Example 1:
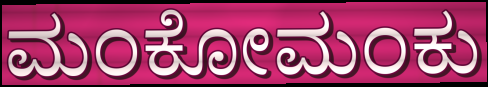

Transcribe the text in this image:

ಮಂಕೋಮಂಕು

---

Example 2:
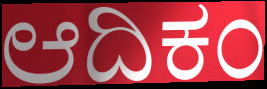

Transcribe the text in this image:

ಆದಿಕಂ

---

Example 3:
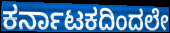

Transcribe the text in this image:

ಕರ್ನಾಟಕದಿಂದಲೇ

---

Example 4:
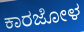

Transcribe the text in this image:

ಕಾರಜೋಳ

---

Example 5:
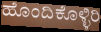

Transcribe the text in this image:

ಹೊಂದಿಕೊಳ್ಳಿರಿ